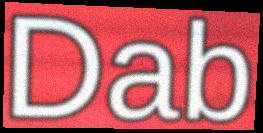
Dab